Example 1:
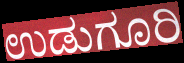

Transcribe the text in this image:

ಉಡುಗೂರಿ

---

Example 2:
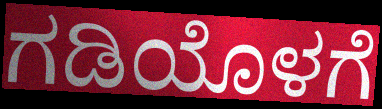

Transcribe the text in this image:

ಗಡಿಯೊಳಗೆ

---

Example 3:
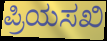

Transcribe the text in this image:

ಪ್ರಿಯಸಖಿ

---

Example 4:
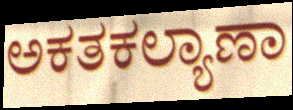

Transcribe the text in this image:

ಅಕತಕಲ್ಯಾಣಾ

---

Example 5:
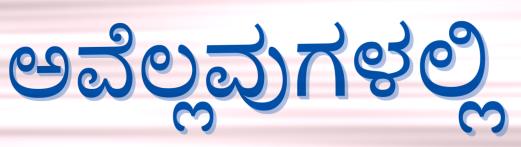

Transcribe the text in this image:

ಅವೆಲ್ಲವುಗಳಲ್ಲಿ